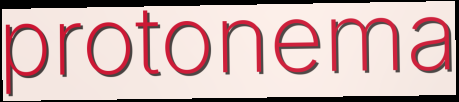
protonema